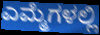
ಎಮ್ಮೆಗಳಲ್ಲಿ